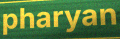
pharyan